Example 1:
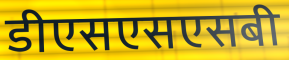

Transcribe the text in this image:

डीएसएसएसबी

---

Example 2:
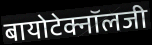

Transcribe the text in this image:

बायोटेक्नॉलजी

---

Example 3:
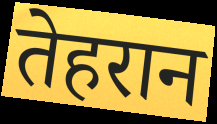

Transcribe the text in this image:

तेहरान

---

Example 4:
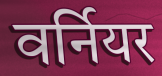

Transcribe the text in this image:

वर्नियर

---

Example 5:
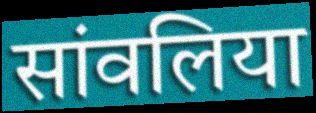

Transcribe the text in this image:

सांवलिया